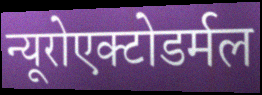
न्यूरोएक्टोडर्मल